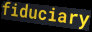
fiduciary